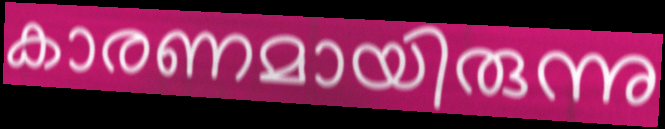
കാരണമായിരുന്നു